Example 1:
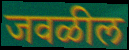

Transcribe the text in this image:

जवळील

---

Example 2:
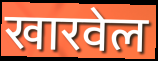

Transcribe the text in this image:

खारवेल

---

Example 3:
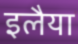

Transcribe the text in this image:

इलैया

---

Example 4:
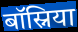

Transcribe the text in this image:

बॉस्निया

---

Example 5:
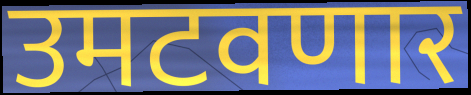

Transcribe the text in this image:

उमटवणार